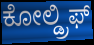
ಕೋಲ್ಡ್ರಿಫ್